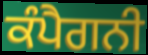
ਕੰਪੈਗਨੀ